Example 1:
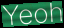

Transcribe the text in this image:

Yeoh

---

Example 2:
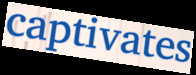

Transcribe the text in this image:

captivates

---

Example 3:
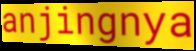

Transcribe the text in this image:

anjingnya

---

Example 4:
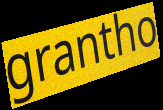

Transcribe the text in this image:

grantho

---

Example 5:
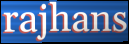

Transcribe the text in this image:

rajhans